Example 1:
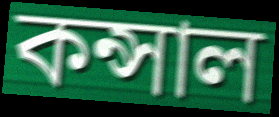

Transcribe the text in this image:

কন্সাল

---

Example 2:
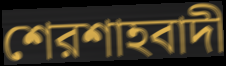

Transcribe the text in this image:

শেরশাহবাদী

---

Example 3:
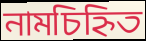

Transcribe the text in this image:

নামচিহ্নিত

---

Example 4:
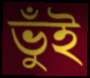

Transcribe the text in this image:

ভুঁই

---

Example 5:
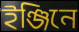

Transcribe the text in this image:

ইঞ্জিনে